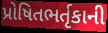
પ્રોષિતભર્તૃકાની